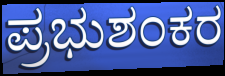
ಪ್ರಭುಶಂಕರ